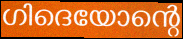
ഗിദെയോന്റെ